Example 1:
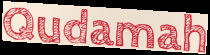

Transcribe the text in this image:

Qudamah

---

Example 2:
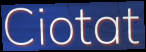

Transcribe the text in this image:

Ciotat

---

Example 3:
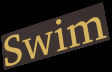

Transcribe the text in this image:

Swim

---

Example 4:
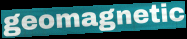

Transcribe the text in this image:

geomagnetic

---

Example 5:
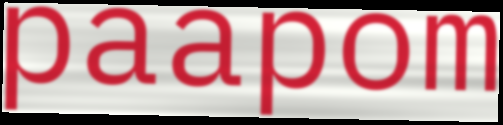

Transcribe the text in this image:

paapom